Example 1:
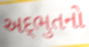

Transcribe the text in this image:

અદ્‌ભુતનો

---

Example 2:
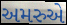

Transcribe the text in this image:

અમરુએ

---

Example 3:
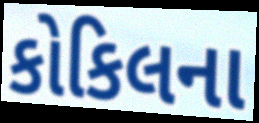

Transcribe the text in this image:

કોકિલના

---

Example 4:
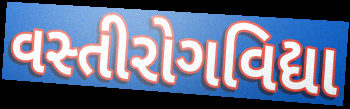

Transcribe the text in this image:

વસ્તીરોગવિદ્યા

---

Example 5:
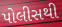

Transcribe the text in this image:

પોલીસથી